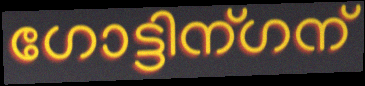
ഗോട്ടിന്ഗന്